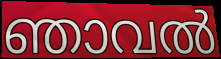
ഞാവൽ